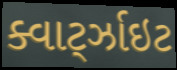
ક્વાર્ટ્ઝાઇટ